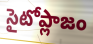
సైటోప్లాజం